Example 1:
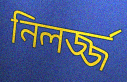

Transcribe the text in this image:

নিলর্জ্জ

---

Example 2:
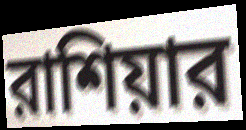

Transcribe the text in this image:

রাশিয়ার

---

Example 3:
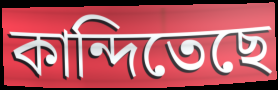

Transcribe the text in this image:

কান্দিতেছে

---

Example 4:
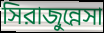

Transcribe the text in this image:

সিরাজুন্নেসা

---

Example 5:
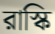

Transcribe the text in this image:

রাস্কি